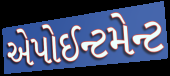
એપોઈન્ટમેન્ટ